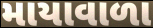
માયાવાળા